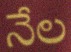
నేల